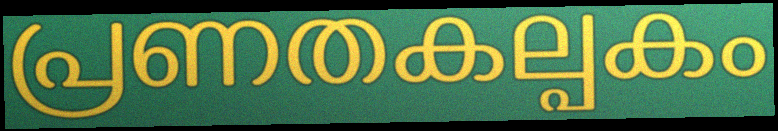
പ്രണതകല്പകം